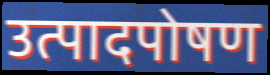
उत्पादपोषण